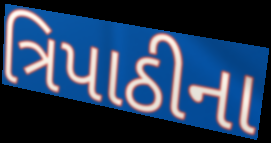
ત્રિપાઠીના